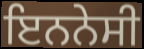
ਇਨਨੇਸੀ